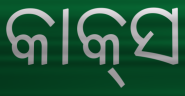
କାକ୍‌ସ